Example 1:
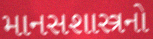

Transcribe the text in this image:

માનસશાસ્ત્રનો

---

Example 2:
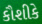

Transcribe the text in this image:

કૌશીકે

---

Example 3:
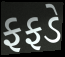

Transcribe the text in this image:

ફફડે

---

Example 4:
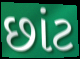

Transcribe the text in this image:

છાંટ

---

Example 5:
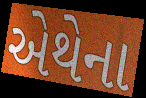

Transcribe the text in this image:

એથેના